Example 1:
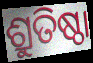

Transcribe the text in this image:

ଶ୍ରୁତିଷ୍ଠା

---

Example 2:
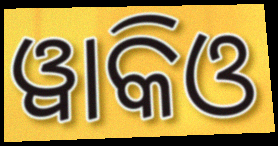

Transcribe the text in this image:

ୱାକିଓ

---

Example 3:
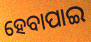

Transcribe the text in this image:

ହେବାପାଇ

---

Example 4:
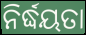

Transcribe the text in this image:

ନିର୍ଦ୍ଧୟତା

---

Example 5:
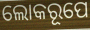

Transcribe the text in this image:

ଲୋକରୂପେ